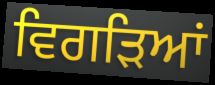
ਵਿਗੜਿਆਂ